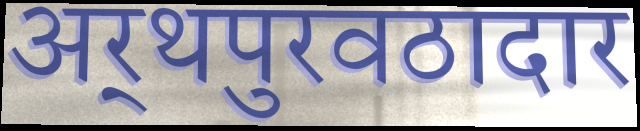
अर्थपुरवठादार